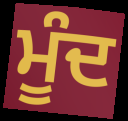
ਮੂੰਦ